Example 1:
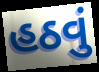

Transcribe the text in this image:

હઠવું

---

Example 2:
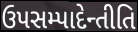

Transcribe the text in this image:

ઉપસમ્પાદેન્તીતિ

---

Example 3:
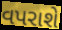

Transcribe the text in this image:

વપરાશે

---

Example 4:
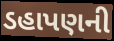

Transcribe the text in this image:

ડહાપણની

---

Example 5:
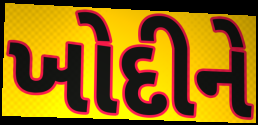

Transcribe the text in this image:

ખોદીને